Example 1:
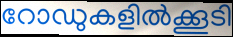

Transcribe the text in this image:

റോഡുകളിൽക്കൂടി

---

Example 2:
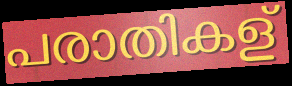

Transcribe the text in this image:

പരാതികള്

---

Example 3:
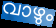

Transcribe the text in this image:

വാഴും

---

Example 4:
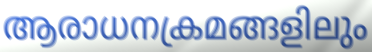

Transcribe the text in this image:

ആരാധനക്രമങ്ങളിലും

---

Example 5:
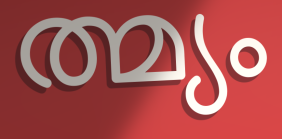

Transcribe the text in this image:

ത്മ്യം